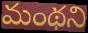
మంథని